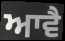
ਆਵੈ